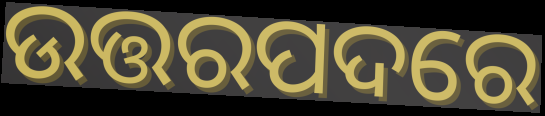
ଉତ୍ତରପଦରେ